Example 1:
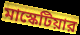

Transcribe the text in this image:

মাস্কেটিয়ার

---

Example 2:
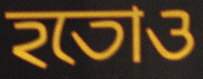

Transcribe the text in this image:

হতোও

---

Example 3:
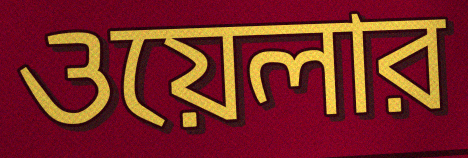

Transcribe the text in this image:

ওয়েলার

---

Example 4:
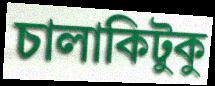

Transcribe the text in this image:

চালাকিটুকু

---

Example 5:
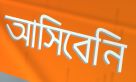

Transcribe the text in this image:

আসিবেনি